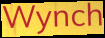
Wynch